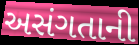
અસંગતાની